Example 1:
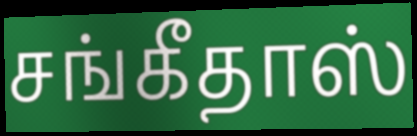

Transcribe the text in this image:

சங்கீதாஸ்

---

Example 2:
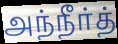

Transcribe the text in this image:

அந்நீர்த்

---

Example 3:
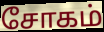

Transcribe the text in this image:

சோகம்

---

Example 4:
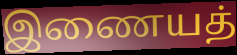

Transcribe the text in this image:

இணையத்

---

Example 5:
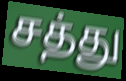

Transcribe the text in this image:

சத்து